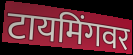
टायमिंगवर